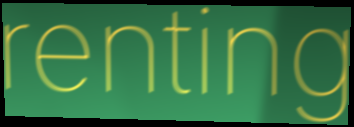
renting